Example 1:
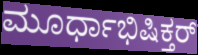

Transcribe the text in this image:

ಮೂರ್ಧಾಭಿಷಿಕ್ತರ್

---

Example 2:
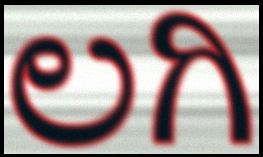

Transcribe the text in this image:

ಲಗಿ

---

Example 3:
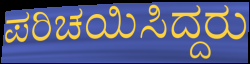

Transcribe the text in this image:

ಪರಿಚಯಿಸಿದ್ದರು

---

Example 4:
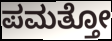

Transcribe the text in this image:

ಪಮತ್ತೋ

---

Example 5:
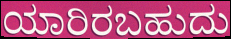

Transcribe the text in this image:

ಯಾರಿರಬಹುದು